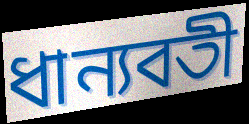
ধান্যবতী